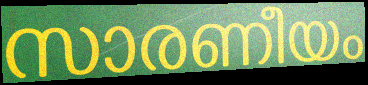
സാരണീയം